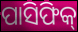
ପାସିଫିକ୍